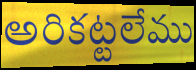
అరికట్టలేము